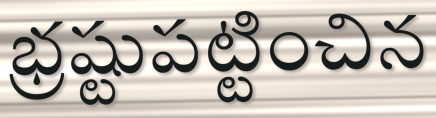
భ్రష్టుపట్టించిన